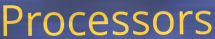
Processors